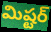
మిష్టర్